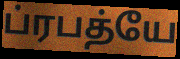
ப்ரபத்யே